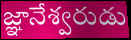
జ్ఞానేశ్వరుడు